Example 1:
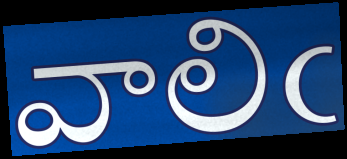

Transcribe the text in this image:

వాలిఁ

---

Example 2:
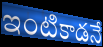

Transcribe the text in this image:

ఇంటికాడనే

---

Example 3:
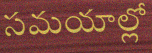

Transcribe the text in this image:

సమయాల్లో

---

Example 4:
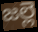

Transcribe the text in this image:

జల్లె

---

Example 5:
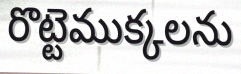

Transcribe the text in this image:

రొట్టెముక్కలను